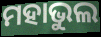
ମହାଭୁଲ